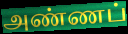
அண்ணப்